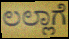
ಲಲ್ಲಾಗೆ